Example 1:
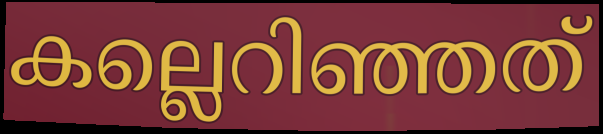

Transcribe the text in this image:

കല്ലെറിഞ്ഞത്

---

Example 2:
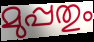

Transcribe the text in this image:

മുപ്പതും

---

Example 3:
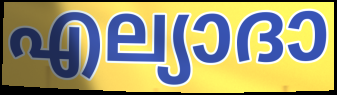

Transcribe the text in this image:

എല്യാദാ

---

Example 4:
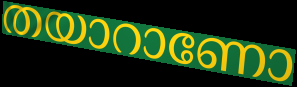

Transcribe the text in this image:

തയാറാണോ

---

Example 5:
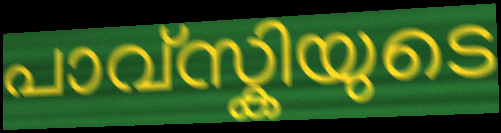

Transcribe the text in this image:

പാവ്സ്കിയുടെ